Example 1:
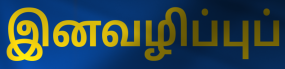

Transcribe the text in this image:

இனவழிப்புப்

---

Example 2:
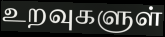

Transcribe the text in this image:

உறவுகளுள்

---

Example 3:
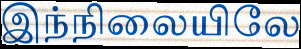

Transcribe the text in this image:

இந்நிலையிலே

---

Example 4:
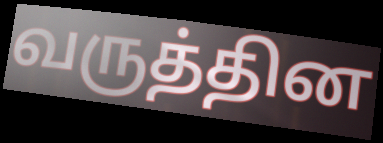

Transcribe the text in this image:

வருத்தின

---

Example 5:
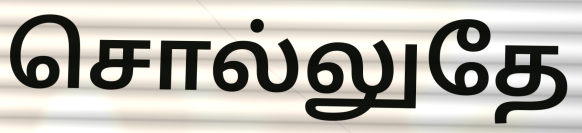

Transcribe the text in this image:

சொல்லுதே